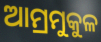
ଆମ୍ରମୁକୁଳ